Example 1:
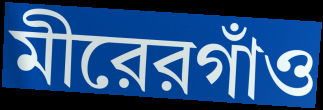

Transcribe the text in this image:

মীরেরগাঁও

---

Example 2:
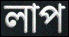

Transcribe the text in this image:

লাপ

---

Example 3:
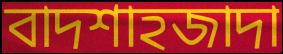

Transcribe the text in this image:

বাদশাহজাদা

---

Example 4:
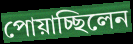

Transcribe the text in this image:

পোয়াচ্ছিলেন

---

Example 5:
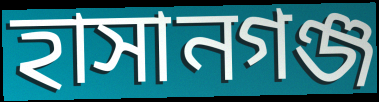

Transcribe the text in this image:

হাসানগঞ্জ